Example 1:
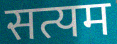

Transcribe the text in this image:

सत्यम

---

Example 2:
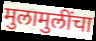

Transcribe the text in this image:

मुलामुलींचा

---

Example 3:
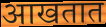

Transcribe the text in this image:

आखतात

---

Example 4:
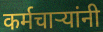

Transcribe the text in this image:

कर्मचाऱ्यांनी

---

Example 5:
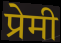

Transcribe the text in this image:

प्रेमी